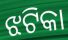
ଝଟିକା